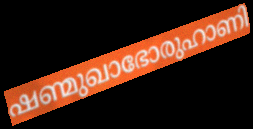
ഷണ്മുഖാഭോരുഹാണി